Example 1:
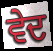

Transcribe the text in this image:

ਵੇਦ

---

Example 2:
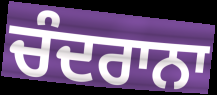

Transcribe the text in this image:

ਚੰਦਰਾਨਾ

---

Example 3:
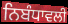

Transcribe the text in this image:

ਨਿਬੰਧਾਵਲੀ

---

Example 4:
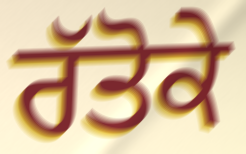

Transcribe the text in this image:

ਰੱਤੋਕੇ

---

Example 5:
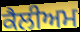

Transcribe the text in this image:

ਕੈਲੀਅਮ